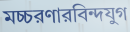
মচ্চরণারবিন্দযুগ